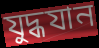
যুদ্ধযান